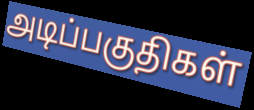
அடிப்பகுதிகள்